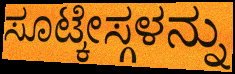
ಸೂಟ್ಕೇಸ್ಗಳನ್ನು